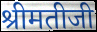
श्रीमतीजी